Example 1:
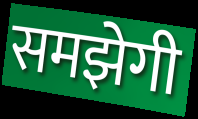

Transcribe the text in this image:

समझेगी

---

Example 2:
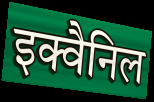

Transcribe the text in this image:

इक्वैनिल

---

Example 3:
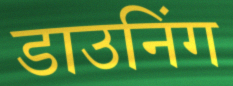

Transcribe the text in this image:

डाउनिंग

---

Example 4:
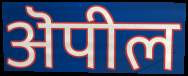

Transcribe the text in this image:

ऄपील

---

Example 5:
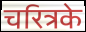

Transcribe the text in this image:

चरित्रके